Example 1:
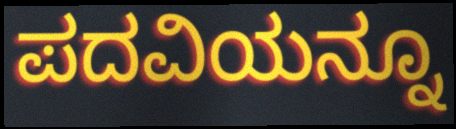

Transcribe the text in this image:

ಪದವಿಯನ್ನೂ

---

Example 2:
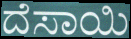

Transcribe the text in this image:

ದೆಸಾಯಿ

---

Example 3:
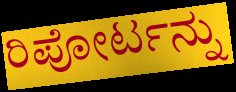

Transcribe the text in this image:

ರಿಪೋರ್ಟನ್ನು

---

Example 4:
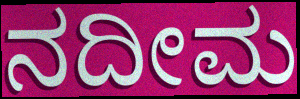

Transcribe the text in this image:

ನದೀಮ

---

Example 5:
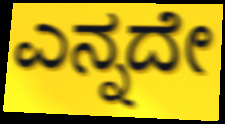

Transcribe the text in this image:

ಎನ್ನದೇ